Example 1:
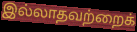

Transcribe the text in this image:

இல்லாதவற்றைக்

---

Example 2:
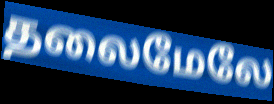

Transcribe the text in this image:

தலைமேலே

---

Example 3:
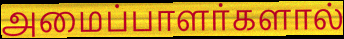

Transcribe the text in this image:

அமைப்பாளர்களால்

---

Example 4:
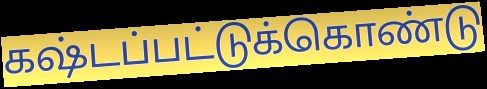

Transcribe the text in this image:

கஷ்டப்பட்டுக்கொண்டு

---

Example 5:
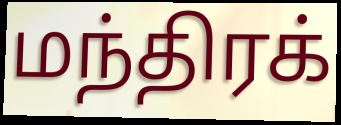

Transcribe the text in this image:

மந்திரக்